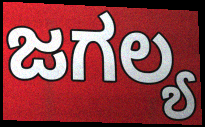
ಜಗಲ್ಯ